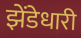
झेंडेधारी